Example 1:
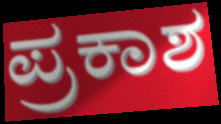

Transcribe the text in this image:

ಪ್ರಕಾಶ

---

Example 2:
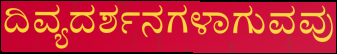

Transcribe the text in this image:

ದಿವ್ಯದರ್ಶನಗಳಾಗುವವು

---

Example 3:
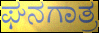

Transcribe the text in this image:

ಘನಗಾತ್ರ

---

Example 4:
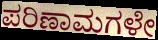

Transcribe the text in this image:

ಪರಿಣಾಮಗಳೇ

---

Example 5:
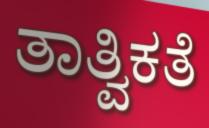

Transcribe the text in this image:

ತಾತ್ವಿಕತೆ